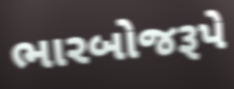
ભારબોજરૂપે